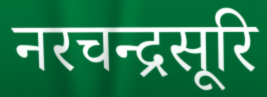
नरचन्द्रसूरि